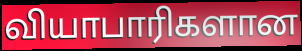
வியாபாரிகளான